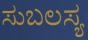
ಸುಬಲಸ್ಯ